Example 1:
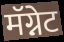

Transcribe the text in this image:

मॅग्नेट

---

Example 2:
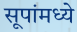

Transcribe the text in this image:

सूपांमध्ये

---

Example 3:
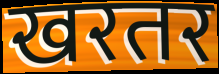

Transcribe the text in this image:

खरतर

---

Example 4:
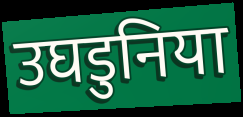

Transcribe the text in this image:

उघडुनिया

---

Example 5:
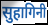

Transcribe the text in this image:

सुहागिनी